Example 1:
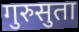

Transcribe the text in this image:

गुरुसुता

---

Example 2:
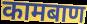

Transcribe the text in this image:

कामबाण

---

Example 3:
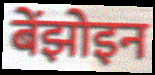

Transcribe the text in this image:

बेंझोइन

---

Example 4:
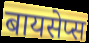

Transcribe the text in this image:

बायसेप्स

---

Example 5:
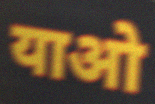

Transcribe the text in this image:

याओ